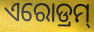
ଏରୋଡ୍ରମ୍